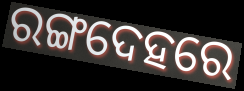
ରଙ୍ଗଦେହରେ